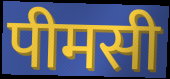
पीमसी